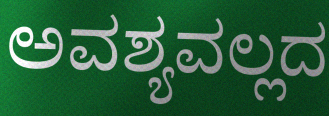
ಅವಶ್ಯವಲ್ಲದ